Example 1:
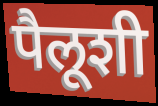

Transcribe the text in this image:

पैलूशी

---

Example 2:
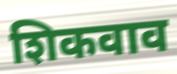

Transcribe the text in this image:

शिकवाव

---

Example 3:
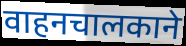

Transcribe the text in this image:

वाहनचालकाने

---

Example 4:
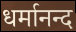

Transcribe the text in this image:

धर्मानन्द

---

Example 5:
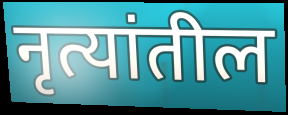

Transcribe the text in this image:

नृत्यांतील